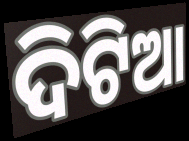
ଦିଟିଆ